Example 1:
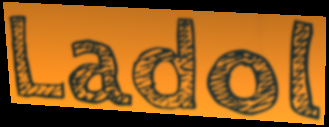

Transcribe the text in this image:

Ladol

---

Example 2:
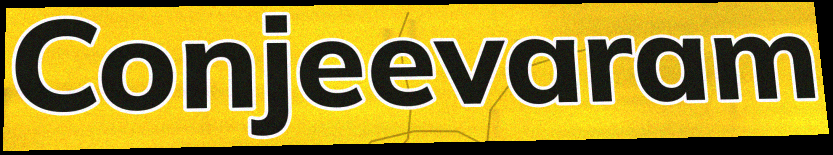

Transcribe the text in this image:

Conjeevaram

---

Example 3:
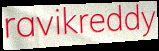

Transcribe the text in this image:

ravikreddy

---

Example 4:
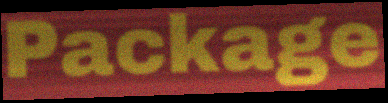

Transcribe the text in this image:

Package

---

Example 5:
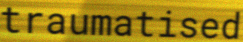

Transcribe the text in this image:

traumatised